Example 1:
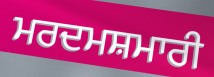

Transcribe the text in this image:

ਮਰਦਮਸ਼ਮਾਰੀ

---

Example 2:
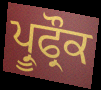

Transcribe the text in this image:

ਪ੍ਰੂਫ੍ਰੌਕ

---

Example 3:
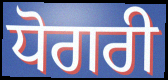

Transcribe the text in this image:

ਧੋਗਰੀ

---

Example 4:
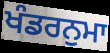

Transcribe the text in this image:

ਖੰਡਰਨੁਮਾ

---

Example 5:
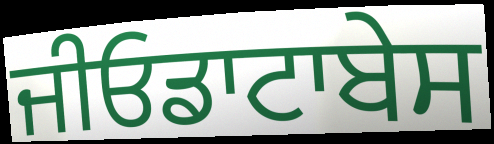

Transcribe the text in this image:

ਜੀਓਡਾਟਾਬੇਸ